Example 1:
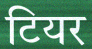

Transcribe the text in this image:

टियर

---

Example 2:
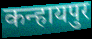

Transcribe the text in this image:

कन्हायपुर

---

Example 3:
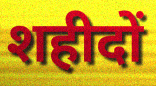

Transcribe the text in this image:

शहीदों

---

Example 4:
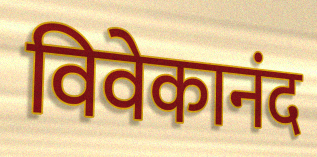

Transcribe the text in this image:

विवेकानंद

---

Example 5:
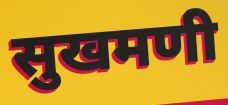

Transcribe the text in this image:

सुखमणी